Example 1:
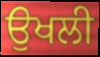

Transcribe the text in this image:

ਉਖਲੀ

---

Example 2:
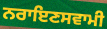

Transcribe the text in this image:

ਨਰਾਇਣਸਵਾਮੀ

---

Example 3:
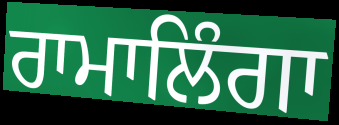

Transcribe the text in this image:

ਰਾਮਾਲਿੰਗਾ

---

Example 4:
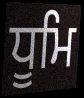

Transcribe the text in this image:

ਧੂਮਿ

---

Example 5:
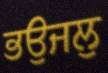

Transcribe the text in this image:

ਭਉਜਲੁ